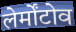
लेर्मोंटोव